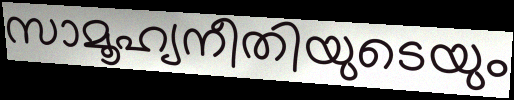
സാമൂഹ്യനീതിയുടെയും